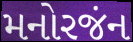
મનોરજંન